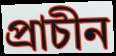
প্রাচীন